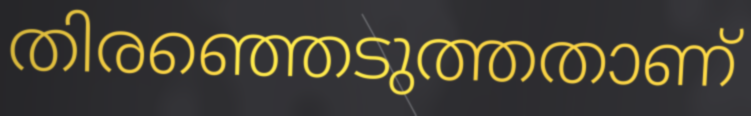
തിരഞ്ഞെടുത്തതാണ്